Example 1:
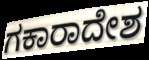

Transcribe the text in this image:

ಗಕಾರಾದೇಶ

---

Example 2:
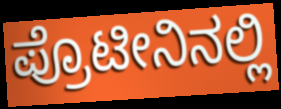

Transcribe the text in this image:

ಪ್ರೊಟೀನಿನಲ್ಲಿ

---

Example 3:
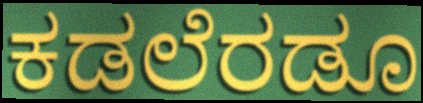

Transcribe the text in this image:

ಕಡಲೆರಡೂ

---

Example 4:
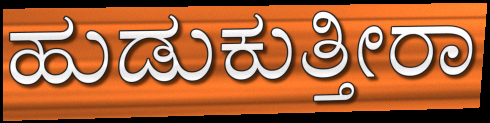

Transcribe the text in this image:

ಹುಡುಕುತ್ತೀರಾ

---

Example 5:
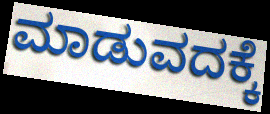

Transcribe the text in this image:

ಮಾಡುವದಕ್ಕೆ